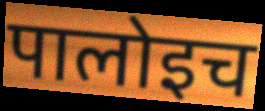
पालोइच